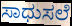
ಸಾಧುಸಲೆ